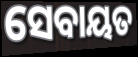
ସେବାୟତ